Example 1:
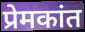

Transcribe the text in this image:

प्रेमकांत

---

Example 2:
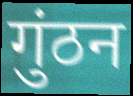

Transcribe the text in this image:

गुंठन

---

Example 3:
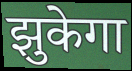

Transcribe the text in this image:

झुकेगा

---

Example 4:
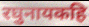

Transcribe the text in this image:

रघुनायकहि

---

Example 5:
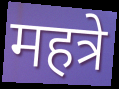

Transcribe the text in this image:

महत्रे